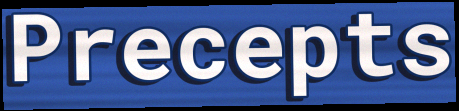
Precepts